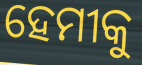
ହେମୀକୁ